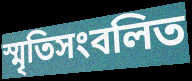
স্মৃতিসংবলিত